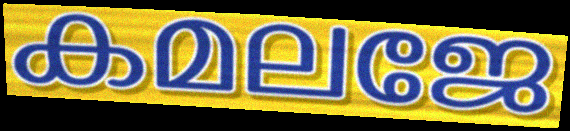
കമലജേ